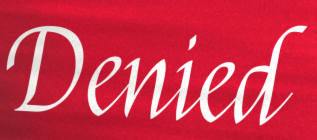
Denied